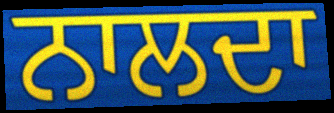
ਨਾਲਦਾ